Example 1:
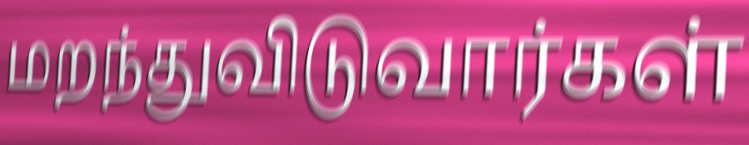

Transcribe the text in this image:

மறந்துவிடுவார்கள்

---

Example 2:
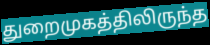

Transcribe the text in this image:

துறைமுகத்திலிருந்த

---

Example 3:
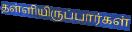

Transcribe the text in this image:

தள்ளியிருப்பார்கள்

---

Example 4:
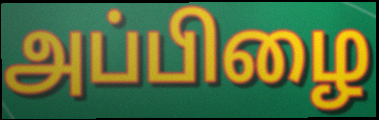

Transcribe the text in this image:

அப்பிழை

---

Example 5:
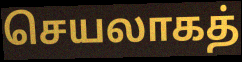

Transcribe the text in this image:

செயலாகத்